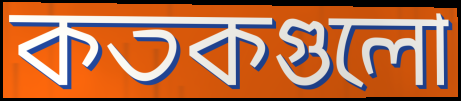
কতকগুলো